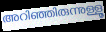
അറിഞ്ഞിരുന്നുള്ളൂ